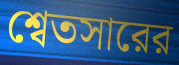
শ্বেতসারের